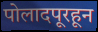
पोलादपूरहून